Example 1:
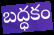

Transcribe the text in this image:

బద్ధకం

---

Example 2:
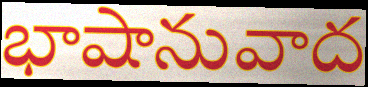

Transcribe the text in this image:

భాషానువాద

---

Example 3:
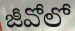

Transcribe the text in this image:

జీవోలో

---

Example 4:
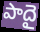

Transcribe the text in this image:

పాదై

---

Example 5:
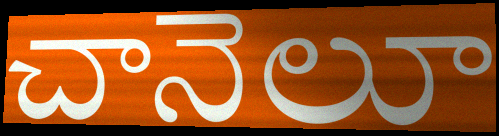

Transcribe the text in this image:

చానెలూ